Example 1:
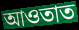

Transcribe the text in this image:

আওতাত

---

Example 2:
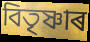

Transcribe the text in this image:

বিতৃষ্ণাৰ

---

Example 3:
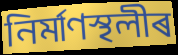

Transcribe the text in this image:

নিৰ্মাণস্থলীৰ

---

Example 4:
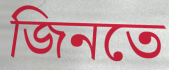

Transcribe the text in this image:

জিনতে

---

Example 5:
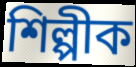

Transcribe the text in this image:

শিল্পীক